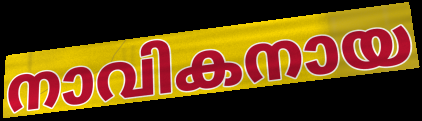
നാവികനായ